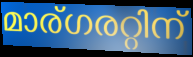
മാര്ഗരറ്റിന്